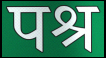
पश्र